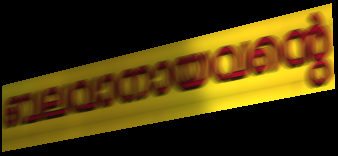
ബലവാനായവന്റെ